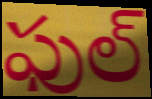
ఫుల్